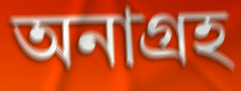
অনাগ্রহ